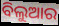
ବିଲୁଆର